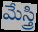
మేస్త్రి